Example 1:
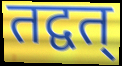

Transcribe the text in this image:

तद्वत्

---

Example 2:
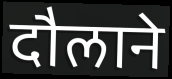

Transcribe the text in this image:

दौलाने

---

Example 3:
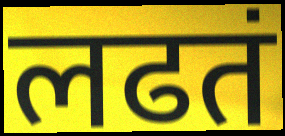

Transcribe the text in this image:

लढतं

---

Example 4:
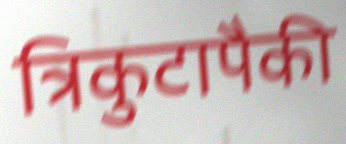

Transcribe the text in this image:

त्रिकुटापैकी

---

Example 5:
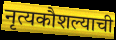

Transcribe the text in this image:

नृत्यकौशल्याची